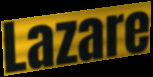
Lazare